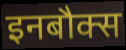
इनबौक्स